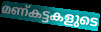
മണ്കട്ടകളുടെ